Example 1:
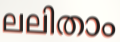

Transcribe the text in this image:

ലലിതാം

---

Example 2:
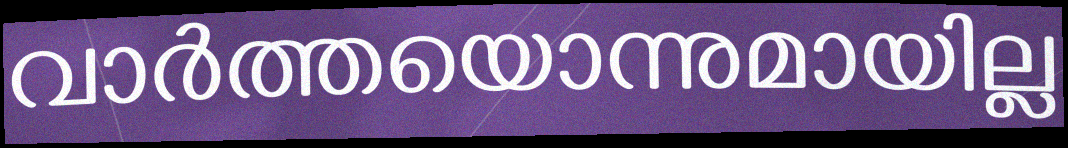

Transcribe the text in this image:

വാർത്തയൊന്നുമായില്ല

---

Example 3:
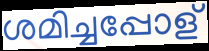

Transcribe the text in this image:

ശമിച്ചപ്പോള്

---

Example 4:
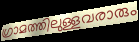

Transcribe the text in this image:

ഗ്രാമത്തിലുള്ളവരാരും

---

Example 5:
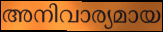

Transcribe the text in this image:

അനിവാര്യമായ